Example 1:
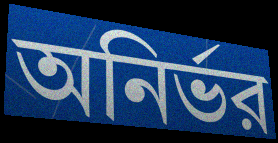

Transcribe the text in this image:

অনির্ভর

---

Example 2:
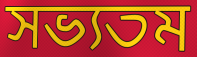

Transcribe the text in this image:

সভ্যতম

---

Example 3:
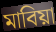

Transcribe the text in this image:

মাবিয়া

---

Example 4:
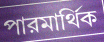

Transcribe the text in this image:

পারমার্থিক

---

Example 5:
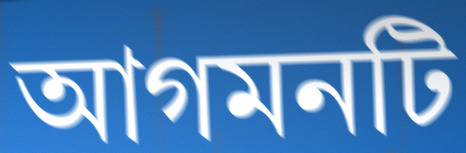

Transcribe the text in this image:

আগমনটি